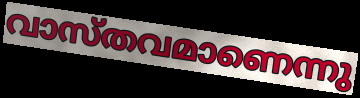
വാസ്തവമാണെന്നു